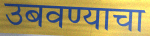
उबवण्याचा